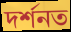
দৰ্শনত